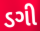
ડગી